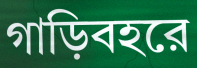
গাড়িবহরে